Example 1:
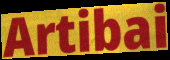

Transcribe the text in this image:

Artibai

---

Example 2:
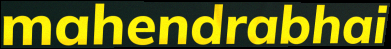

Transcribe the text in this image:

mahendrabhai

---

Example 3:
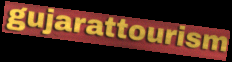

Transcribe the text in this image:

gujarattourism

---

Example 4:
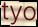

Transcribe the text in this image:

tyo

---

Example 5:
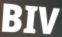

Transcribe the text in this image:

BIV